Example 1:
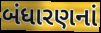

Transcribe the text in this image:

બંધારણનાં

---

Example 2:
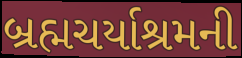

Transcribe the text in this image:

બ્રહ્મચર્યાશ્રમની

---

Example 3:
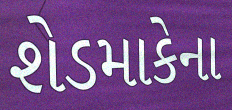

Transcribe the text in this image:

શેડમાકેના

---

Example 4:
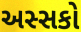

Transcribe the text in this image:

અસ્સકો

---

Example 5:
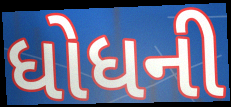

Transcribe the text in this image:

ધોધની